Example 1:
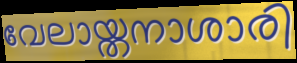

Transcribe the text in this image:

വേലായ്തനാശാരി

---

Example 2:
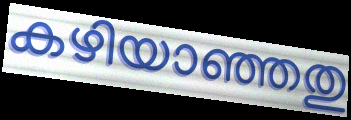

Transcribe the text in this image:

കഴിയാഞ്ഞതു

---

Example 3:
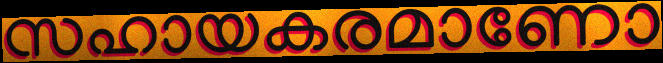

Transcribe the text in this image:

സഹായകരമാണോ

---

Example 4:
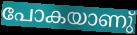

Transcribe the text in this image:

പോകയാണു്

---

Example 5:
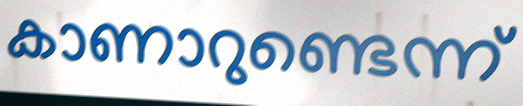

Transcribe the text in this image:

കാണാറുണ്ടെന്ന്